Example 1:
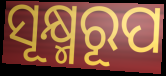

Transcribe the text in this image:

ସୂକ୍ଷ୍ମରୂପ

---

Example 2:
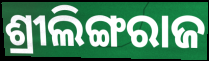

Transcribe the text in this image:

ଶ୍ରୀଲିଙ୍ଗରାଜ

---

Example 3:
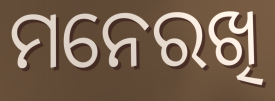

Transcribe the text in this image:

ମନେରଖି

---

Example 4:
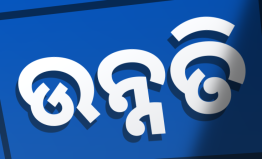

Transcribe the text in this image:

ଉନ୍ନତି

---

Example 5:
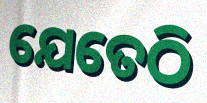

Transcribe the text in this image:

ଯେତେଠି